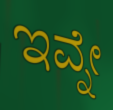
ಇವ್ನೇ